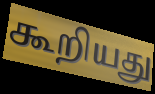
கூறியது